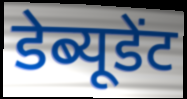
डेब्यूडेंट